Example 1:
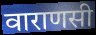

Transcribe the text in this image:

वाराणसी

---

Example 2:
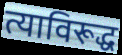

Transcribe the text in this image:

त्याविरूद्ध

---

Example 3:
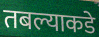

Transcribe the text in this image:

तबल्याकडे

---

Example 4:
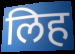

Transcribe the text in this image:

लिह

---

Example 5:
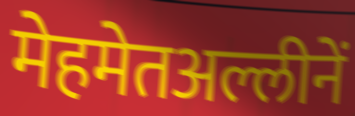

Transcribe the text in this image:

मेहमेतअल्लीनें